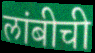
लांबीची